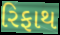
રિફાથ